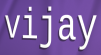
vijay